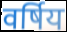
वर्षिय